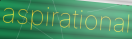
aspirational